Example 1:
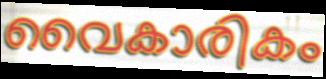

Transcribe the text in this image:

വൈകാരികം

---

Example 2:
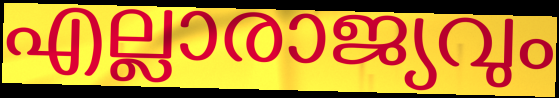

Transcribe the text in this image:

എല്ലാരാജ്യവും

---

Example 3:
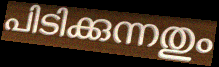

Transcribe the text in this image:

പിടിക്കുന്നതും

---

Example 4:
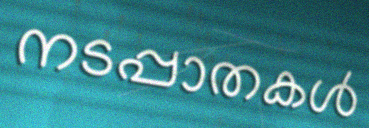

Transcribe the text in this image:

നടപ്പാതകൾ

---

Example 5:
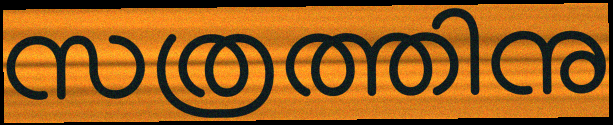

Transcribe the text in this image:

സത്രത്തിനു